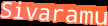
Sivaramu